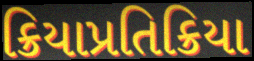
ક્રિયાપ્રતિક્રિયા